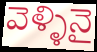
వెళ్ళినై